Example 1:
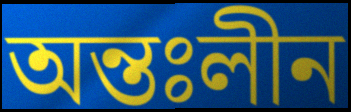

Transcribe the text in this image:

অন্তঃলীন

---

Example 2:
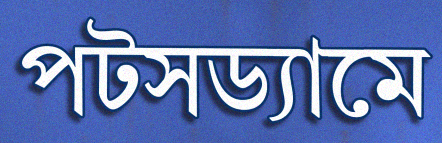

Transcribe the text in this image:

পটসড্যামে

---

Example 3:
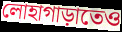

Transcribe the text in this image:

লোহাগাড়াতেও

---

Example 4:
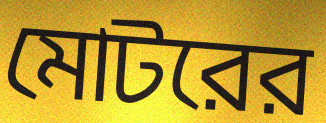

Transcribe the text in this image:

মোটরের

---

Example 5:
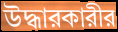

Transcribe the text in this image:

উদ্ধারকারীর